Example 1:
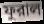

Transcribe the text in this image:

ফুরাল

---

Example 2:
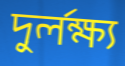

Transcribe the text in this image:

দুর্লক্ষ্য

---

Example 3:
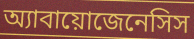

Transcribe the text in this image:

অ্যাবায়োজেনেসিস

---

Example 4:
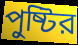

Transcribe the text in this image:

পুষ্টির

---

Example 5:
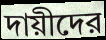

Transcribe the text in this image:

দায়ীদের